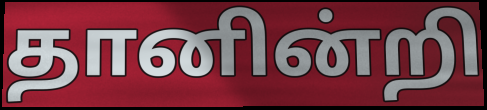
தானின்றி